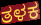
ತಳಕ